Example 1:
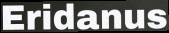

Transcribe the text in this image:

Eridanus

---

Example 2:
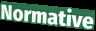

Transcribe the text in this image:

Normative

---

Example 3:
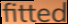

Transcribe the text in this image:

fitted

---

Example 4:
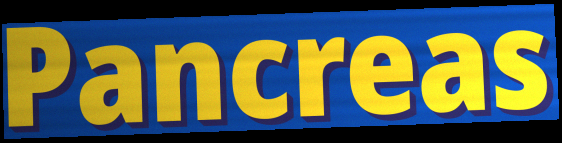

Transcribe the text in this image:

Pancreas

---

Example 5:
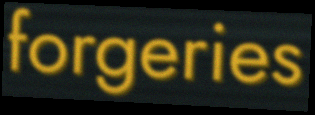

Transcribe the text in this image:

forgeries